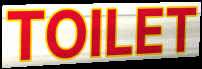
TOILET